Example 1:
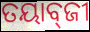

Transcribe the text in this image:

ତୟାବ୍‌ଜୀ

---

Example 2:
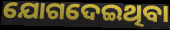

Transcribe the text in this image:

ଯୋଗଦେଇଥିବା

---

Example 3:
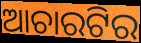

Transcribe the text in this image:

ଆଚାରଟିର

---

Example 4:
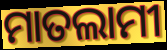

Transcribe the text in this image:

ମାତଲାମୀ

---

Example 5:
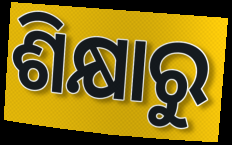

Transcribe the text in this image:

ଶିକ୍ଷାରୁ